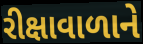
રીક્ષાવાળાને